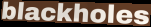
blackholes